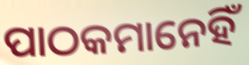
ପାଠକମାନେହିଁ